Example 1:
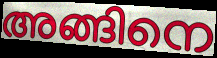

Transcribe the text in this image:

അങ്ങിനെ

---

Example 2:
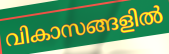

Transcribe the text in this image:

വികാസങ്ങളിൽ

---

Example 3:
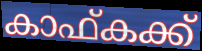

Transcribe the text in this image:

കാഫ്കക്ക്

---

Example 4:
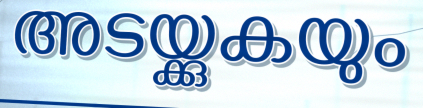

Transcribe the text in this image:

അടയ്ക്കുകയും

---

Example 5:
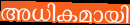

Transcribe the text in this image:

അധികമായി